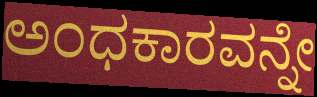
ಅಂಧಕಾರವನ್ನೇ